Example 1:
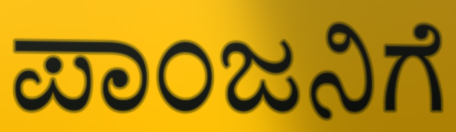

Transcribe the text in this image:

ಪಾಂಜನಿಗೆ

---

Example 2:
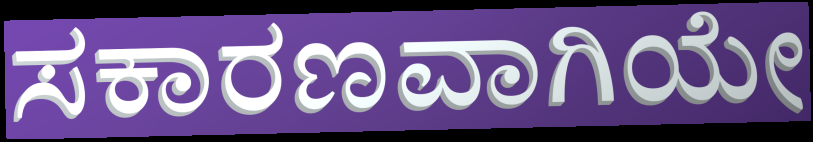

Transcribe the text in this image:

ಸಕಾರಣವಾಗಿಯೇ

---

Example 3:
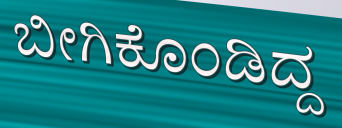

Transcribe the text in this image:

ಬೀಗಿಕೊಂಡಿದ್ದ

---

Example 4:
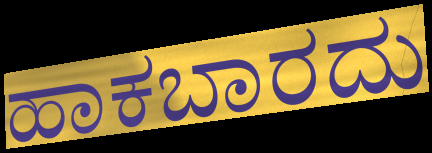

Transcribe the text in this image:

ಹಾಕಬಾರದು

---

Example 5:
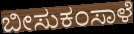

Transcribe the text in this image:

ಬೀಸುಕಂಸಾಳೆ